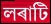
লৰাটি